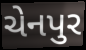
ચેનપુર